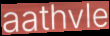
aathvle